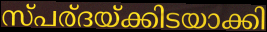
സ്പര്ദയ്ക്കിടയാക്കി